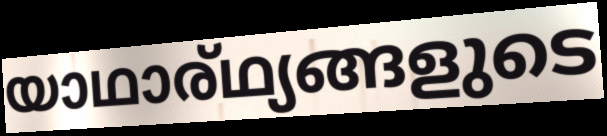
യാഥാര്ഥ്യങ്ങളുടെ